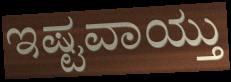
ಇಷ್ಟವಾಯ್ತು